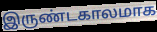
இருண்டகாலமாக